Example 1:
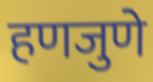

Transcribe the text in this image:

हणजुणे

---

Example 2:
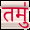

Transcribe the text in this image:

तमु॑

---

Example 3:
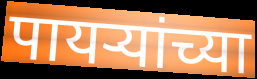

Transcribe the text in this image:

पायर्‍यांच्या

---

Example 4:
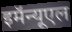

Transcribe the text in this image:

इमॅन्यूएल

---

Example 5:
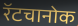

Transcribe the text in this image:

रॅटचानोक